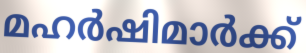
മഹർഷിമാർക്ക്